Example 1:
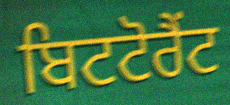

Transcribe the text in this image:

ਬਿਟਟੋਰੈਂਟ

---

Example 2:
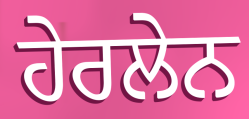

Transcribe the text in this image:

ਹੇਰਲੇਨ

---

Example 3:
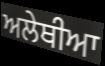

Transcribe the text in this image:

ਅਲੇਥੀਆ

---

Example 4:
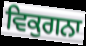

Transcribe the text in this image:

ਵਿਕੁਗਨਾ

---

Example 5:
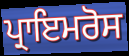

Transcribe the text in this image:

ਪ੍ਰਾਇਮਰੋਸ